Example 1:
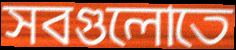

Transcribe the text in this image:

সবগুলোতে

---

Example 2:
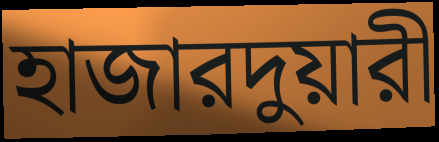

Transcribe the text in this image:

হাজারদুয়ারী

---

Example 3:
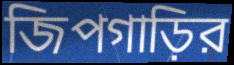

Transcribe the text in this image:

জিপগাড়ির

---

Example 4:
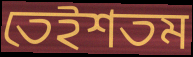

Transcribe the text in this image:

তেইশতম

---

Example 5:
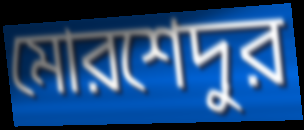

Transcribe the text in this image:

মোরশেদুর